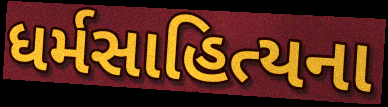
ધર્મસાહિત્યના